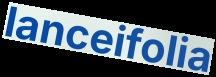
lanceifolia